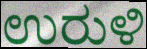
ಉರುಳಿ